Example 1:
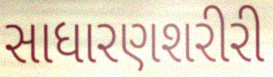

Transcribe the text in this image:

સાધારણશરીરી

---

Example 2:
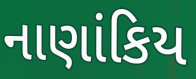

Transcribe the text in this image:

નાણાંકિય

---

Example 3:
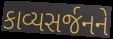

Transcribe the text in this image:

કાવ્યસર્જનને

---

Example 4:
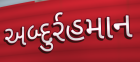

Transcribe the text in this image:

અબ્દુર્રહમાન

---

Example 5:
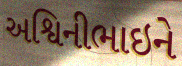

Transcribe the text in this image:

અશ્વિનીભાઇને